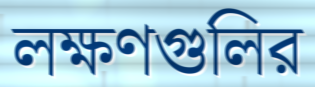
লক্ষণগুলির